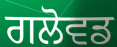
ਗਲੋਵਡ